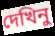
দেখিনু